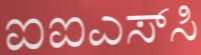
ಐಐಎಸ್‌ಸಿ